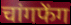
चांगफेंग